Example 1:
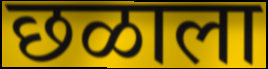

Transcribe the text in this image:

छळाला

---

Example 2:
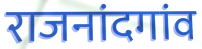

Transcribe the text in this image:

राजनांदगांव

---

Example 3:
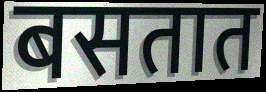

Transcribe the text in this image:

बसतात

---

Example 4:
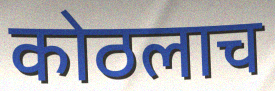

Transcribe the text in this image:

कोठलाच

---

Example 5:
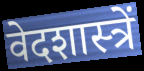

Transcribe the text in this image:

वेदशास्त्रें